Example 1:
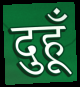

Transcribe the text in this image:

दुहूँ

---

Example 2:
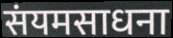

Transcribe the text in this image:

संयमसाधना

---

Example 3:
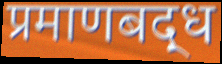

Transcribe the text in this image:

प्रमाणबद्ध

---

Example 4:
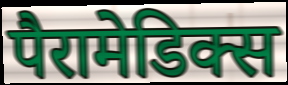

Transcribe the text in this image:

पैरामेडिक्स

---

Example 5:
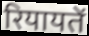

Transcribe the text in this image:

रियायतें